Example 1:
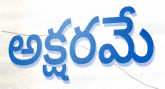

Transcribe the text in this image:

అక్షరమే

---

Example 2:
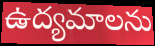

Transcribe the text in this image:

ఉద్యమాలను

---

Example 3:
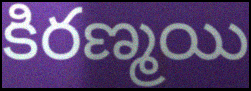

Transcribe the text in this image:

కిరణ్మయి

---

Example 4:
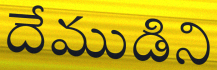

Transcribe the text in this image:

దేముడిని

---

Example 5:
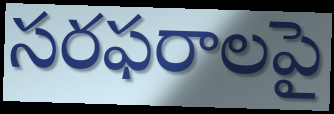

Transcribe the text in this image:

సరఫరాలపై